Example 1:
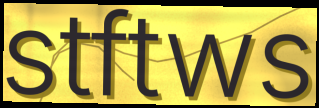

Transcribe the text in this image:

stftws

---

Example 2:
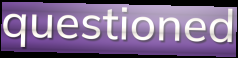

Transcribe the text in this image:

questioned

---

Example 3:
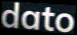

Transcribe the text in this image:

dato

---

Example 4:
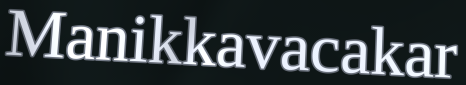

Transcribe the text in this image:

Manikkavacakar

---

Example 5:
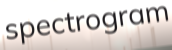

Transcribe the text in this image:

spectrogram